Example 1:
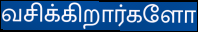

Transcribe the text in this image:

வசிக்கிறார்களோ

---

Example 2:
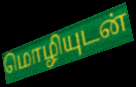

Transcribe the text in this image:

மொழியுடன்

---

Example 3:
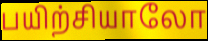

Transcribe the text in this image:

பயிற்சியாலோ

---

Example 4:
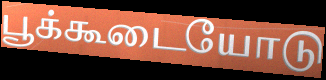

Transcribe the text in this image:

பூக்கூடையோடு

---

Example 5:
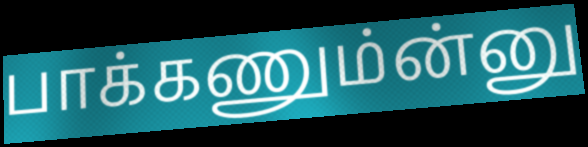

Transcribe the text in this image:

பாக்கணும்ன்னு